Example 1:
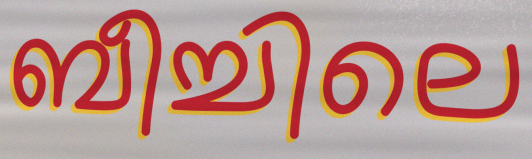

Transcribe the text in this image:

ബീച്ചിലെ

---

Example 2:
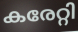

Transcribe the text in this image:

കരേറ്റി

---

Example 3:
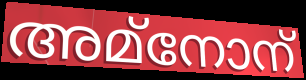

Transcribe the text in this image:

അമ്നോന്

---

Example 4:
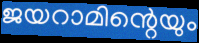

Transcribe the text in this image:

ജയറാമിന്റെയും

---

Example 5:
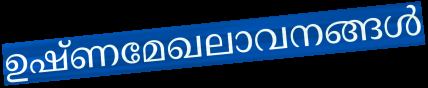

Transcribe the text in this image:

ഉഷ്ണമേഖലാവനങ്ങൾ